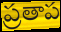
ప్రతాప